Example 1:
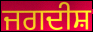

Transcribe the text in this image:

ਜਗਦੀਸ਼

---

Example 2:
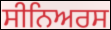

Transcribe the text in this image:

ਸੀਨਿਅਰਸ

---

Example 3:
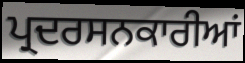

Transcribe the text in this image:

ਪ੍ਰਦਰਸਨਕਾਰੀਆਂ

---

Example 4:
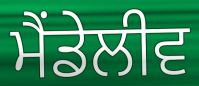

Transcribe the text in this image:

ਮੈਂਡੇਲੀਵ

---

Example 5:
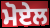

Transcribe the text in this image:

ਮੋਏਲ